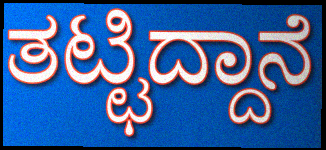
ತಟ್ಟಿದ್ದಾನೆ